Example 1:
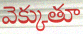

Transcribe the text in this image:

వెక్కుతూ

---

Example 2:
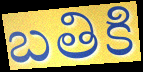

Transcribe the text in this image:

బతికి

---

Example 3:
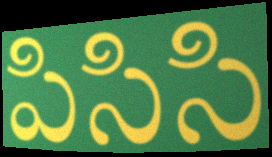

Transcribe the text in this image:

పిసిసి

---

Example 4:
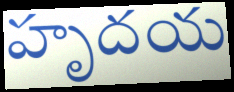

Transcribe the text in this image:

హృదయ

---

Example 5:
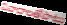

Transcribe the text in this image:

వివాదాలతోపాటు